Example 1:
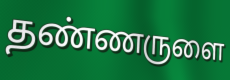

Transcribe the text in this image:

தண்ணருளை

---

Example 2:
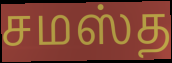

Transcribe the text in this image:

சமஸ்த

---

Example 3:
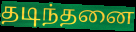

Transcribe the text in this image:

தடிந்தனை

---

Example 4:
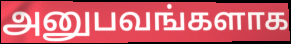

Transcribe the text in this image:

அனுபவங்களாக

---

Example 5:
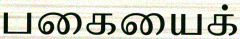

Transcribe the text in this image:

பகையைக்